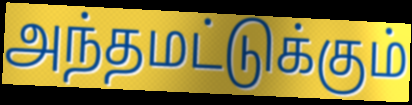
அந்தமட்டுக்கும்